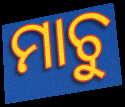
ମାଚୁ